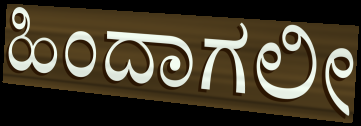
ಹಿಂದಾಗಲೀ